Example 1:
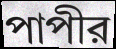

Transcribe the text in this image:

পাপীর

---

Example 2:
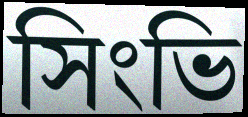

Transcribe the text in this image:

সিংভি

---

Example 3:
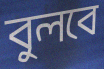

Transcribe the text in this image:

বুলবে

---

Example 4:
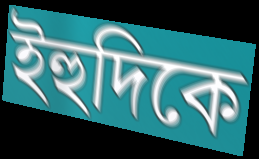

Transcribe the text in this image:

ইহুদিকে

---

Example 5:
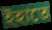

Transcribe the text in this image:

ইহাতে